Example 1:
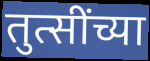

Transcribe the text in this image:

तुत्सींच्या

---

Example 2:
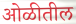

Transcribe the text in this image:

ओळीतील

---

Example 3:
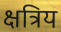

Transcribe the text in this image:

क्षत्रिय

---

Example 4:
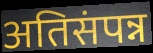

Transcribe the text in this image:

अतिसंपन्न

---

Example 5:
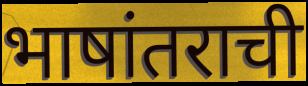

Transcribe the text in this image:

भाषांतराची